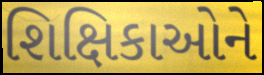
શિક્ષિકાઓને